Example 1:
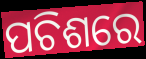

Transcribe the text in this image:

ପଚିଶରେ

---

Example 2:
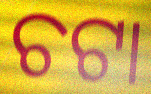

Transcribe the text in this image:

ଚଟା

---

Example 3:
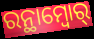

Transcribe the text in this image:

ରନ୍ଥାମ୍ବୋର୍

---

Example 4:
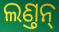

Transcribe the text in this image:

ଲଣ୍ତନ୍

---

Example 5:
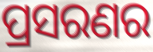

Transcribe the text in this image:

ପ୍ରସରଣର